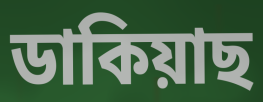
ডাকিয়াছ